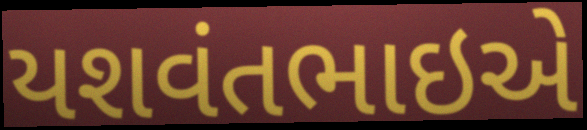
યશવંતભાઇએ